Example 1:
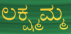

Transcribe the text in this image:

ಲಕ್ಷ್ಮಮ್ಮ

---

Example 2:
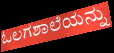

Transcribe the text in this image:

ಓಲಗಶಾಲೆಯನ್ನು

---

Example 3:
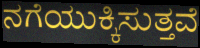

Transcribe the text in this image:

ನಗೆಯುಕ್ಕಿಸುತ್ತವೆ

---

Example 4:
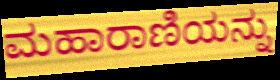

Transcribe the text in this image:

ಮಹಾರಾಣಿಯನ್ನು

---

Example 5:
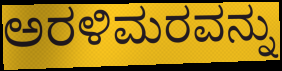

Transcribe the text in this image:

ಅರಳಿಮರವನ್ನು